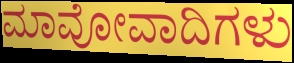
ಮಾವೋವಾದಿಗಳು